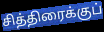
சித்திரைக்குப்